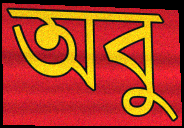
অবু